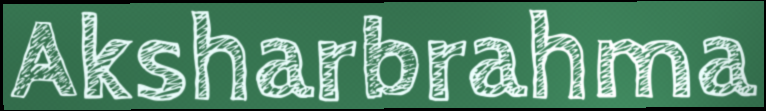
Aksharbrahma